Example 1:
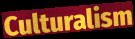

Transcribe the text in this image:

Culturalism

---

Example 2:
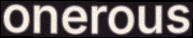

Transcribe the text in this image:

onerous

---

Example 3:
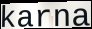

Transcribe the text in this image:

karna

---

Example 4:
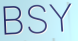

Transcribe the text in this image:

BSY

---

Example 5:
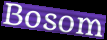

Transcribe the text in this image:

Bosom